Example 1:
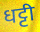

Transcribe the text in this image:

धट्टी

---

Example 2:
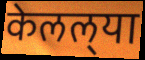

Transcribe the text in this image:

केलल्या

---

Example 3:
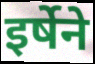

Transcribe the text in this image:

इर्षेने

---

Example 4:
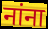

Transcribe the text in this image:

नांना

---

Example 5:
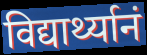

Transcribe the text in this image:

विद्यार्थ्यानं